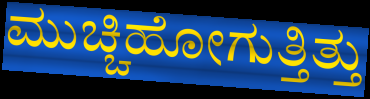
ಮುಚ್ಚಿಹೋಗುತ್ತಿತ್ತು